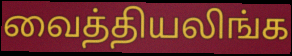
வைத்தியலிங்க